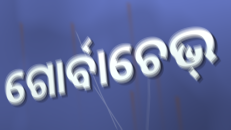
ଗୋର୍ବାଚେଭ୍